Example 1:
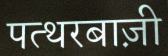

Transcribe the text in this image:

पत्थरबाज़ी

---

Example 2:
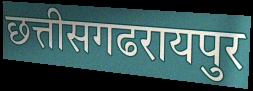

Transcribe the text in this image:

छत्तीसगढरायपुर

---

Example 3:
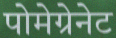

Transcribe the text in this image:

पोमेग्रेनेट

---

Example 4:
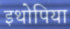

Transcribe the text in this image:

इथोपिया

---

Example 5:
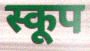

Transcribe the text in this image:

स्कूप